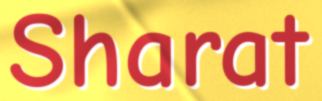
Sharat